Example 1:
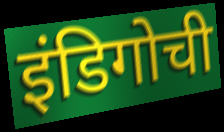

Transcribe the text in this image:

इंडिगोची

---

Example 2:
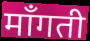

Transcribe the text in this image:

माँगती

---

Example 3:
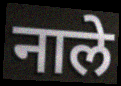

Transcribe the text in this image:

नाले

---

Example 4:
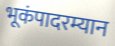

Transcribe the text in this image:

भूकंपादरम्यान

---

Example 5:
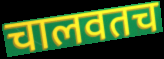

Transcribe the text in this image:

चालवतच